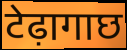
टेढ़ागाछ